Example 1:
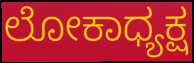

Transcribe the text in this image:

ಲೋಕಾಧ್ಯಕ್ಷ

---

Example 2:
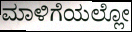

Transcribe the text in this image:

ಮಾಳಿಗೆಯಲ್ಲೋ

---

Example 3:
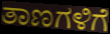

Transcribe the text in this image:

ತಾಣಗಳಿಗೆ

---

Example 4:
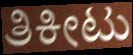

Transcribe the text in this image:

ತಿಕೀಟು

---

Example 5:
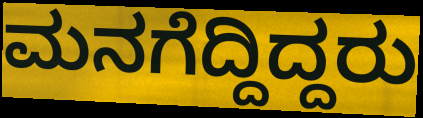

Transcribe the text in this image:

ಮನಗೆದ್ದಿದ್ದರು